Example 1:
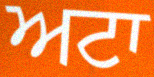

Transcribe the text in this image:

ਅਟਾ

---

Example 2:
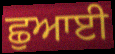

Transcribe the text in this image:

ਛੁਆਈ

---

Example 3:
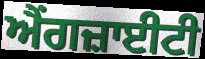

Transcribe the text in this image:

ਐਂਗਜ਼ਾਈਟੀ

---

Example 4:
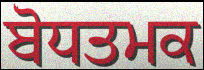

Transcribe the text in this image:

ਬੋਧਤਮਕ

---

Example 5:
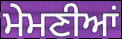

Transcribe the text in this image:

ਮੇਮਣੀਆਂ